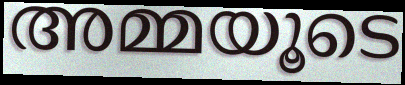
അമ്മയൂടെ